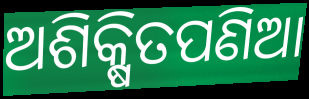
ଅଶିକ୍ଷିତପଣିଆ